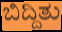
ಬಿದ್ದಿತು